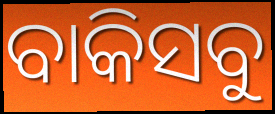
ବାକିସବୁ